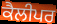
ਕੈਲੀਪਰ